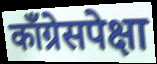
काँग्रेसपेक्षा